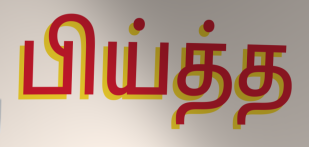
பிய்த்த